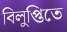
বিলুপ্তিতে